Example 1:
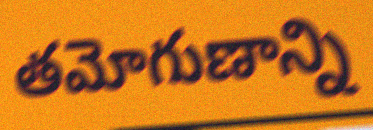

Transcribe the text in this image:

తమోగుణాన్ని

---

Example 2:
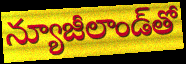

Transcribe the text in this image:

న్యూజీలాండ్‌తో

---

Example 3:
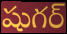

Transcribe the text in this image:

షుగర్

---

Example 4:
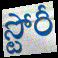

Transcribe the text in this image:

స్టోరీ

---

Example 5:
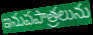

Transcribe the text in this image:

ఇనుపపాత్రలును